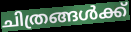
ചിത്രങ്ങൾക്ക്